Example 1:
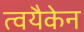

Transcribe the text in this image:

त्वयैकेन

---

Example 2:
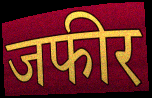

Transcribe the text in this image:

जफीर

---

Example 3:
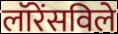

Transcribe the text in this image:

लॉरेंसविले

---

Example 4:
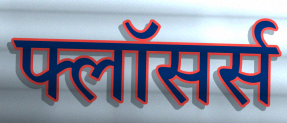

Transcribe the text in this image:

फ्लॉसर्स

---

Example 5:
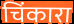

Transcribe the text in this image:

चिंकारा